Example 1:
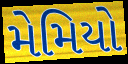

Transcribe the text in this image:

મેમિયો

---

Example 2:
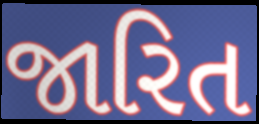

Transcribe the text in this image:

જારિત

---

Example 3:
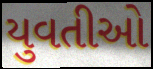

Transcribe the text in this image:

યુવતીઓ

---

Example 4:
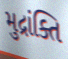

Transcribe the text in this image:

મુદ્રાંક્તિ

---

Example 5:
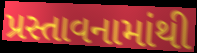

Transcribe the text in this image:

પ્રસ્તાવનામાંથી